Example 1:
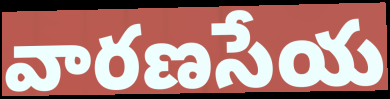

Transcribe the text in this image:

వారణసేయ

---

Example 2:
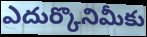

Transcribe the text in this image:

ఎదుర్కొనిమీకు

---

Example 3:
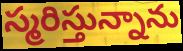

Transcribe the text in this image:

స్మరిస్తున్నాను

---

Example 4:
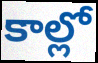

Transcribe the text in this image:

కాల్లో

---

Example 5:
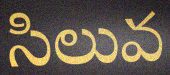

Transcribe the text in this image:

సిలువ